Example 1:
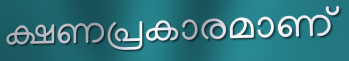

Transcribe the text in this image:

ക്ഷണപ്രകാരമാണ്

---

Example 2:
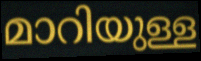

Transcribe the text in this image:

മാറിയുള്ള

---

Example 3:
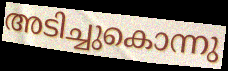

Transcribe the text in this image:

അടിച്ചുകൊന്നു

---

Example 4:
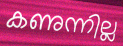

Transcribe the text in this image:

കണുന്നില്ല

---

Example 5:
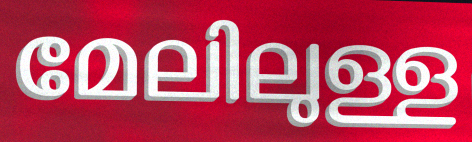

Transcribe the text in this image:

മേലിലുള്ള